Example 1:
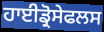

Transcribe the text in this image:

ਹਾਈਡ੍ਰੋਸੇਫਲਸ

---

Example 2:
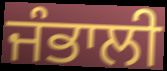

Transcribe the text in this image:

ਜੰਭਾਲੀ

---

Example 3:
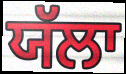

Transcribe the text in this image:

ਯੱਲਾ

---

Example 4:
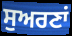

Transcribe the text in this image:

ਸੁਅਰਣਾਂ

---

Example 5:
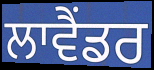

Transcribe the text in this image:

ਲਾਵੈਂਡਰ